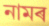
নামৰ